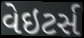
વેઇટર્સ